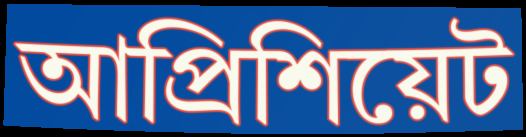
আপ্রিশিয়েট